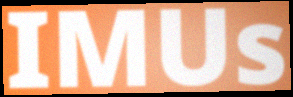
IMUs